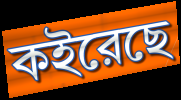
কইরেছে